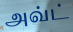
அவ்ட்